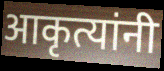
आकृत्यांनी